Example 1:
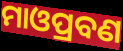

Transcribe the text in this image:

ମାଓପ୍ରବଣ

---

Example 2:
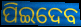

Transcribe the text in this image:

ପିଇଦେବ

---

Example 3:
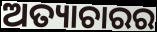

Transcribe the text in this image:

ଅତ୍ୟାଚାରର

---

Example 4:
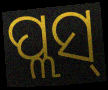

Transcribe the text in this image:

ପ୍ଲସ୍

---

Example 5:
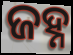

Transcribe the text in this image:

ଜହ୍ନ